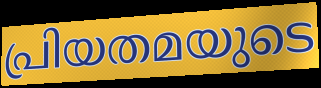
പ്രിയതമയുടെ